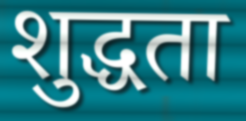
शुद्धता